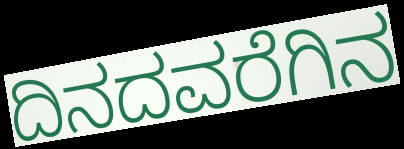
ದಿನದವರೆಗಿನ